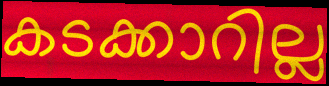
കടക്കാറില്ല